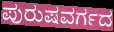
ಪುರುಷವರ್ಗದ